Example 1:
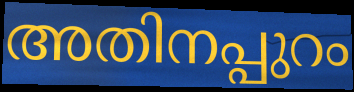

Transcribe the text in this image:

അതിനപ്പുറം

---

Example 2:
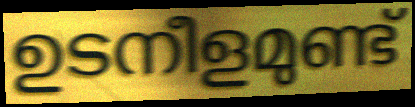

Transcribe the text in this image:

ഉടനീളമുണ്ട്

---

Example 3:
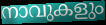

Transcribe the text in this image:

നാവുകളും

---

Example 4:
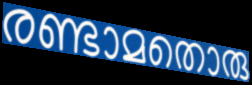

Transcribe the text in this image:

രണ്ടാമതൊരു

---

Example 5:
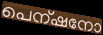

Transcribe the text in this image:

പെന്ഷനോ